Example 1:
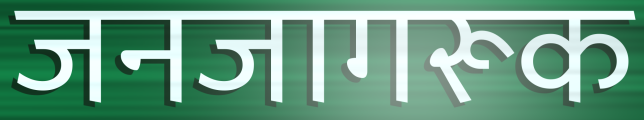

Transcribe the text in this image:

जनजागरूक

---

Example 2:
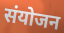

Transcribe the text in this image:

संयोजन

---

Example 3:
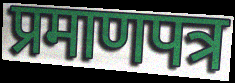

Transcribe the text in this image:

प्रमाणपत्र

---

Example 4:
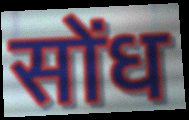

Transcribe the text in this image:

सोंध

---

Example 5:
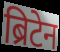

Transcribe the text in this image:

ब्रिटेन